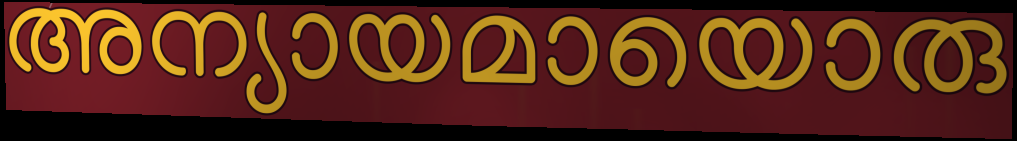
അന്യായമായൊരു